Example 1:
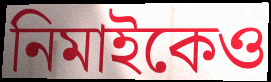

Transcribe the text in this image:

নিমাইকেও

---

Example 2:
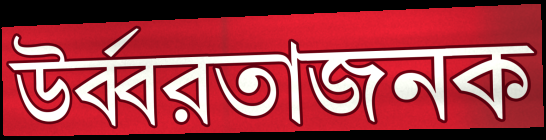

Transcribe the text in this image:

উর্ব্বরতাজনক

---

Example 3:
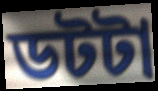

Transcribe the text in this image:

ডটটা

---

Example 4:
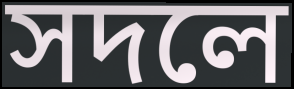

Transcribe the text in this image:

সদলে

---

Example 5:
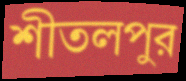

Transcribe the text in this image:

শীতলপুর